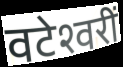
वटेश्वरीं